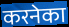
करनेका